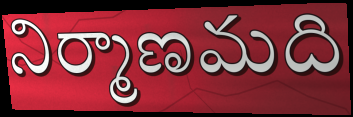
నిర్మాణమది